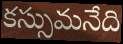
కస్సుమనేది